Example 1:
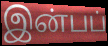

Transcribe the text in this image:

இன்பப்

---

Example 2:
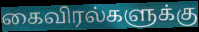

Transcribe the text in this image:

கைவிரல்களுக்கு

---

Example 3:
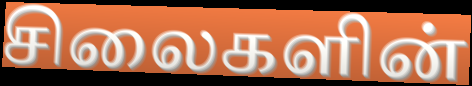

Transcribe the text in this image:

சிலைகளின்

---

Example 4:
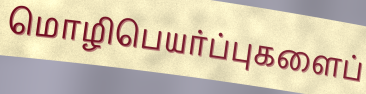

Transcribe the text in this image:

மொழிபெயர்ப்புகளைப்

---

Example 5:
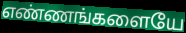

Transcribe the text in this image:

எண்ணங்களையே